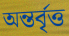
অন্তৰ্বৃত্ত